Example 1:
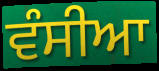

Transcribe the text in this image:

ਵੰਸੀਆ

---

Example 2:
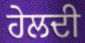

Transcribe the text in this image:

ਹੇਲਦੀ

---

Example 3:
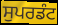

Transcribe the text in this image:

ਸੁਪਰਡੰਟ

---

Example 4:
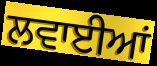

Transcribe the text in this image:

ਲਵਾਈਆਂ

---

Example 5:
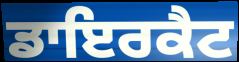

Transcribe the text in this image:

ਡਾਇਰਕੈਟ